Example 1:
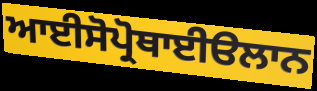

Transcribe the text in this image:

ਆਈਸੋਪ੍ਰੋਥਾਈੳਲਾਨ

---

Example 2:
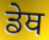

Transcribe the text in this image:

ਡੇਥ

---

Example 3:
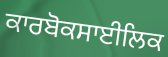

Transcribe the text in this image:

ਕਾਰਬੋਕਸਾਈਲਿਕ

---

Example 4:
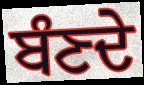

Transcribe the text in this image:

ਬੰਣਦੇ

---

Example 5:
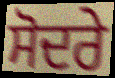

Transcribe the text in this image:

ਸੋਦਰੇ